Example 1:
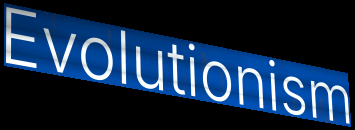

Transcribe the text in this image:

Evolutionism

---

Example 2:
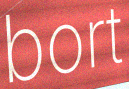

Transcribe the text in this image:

bort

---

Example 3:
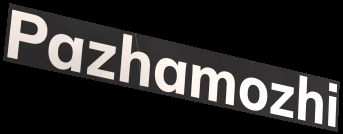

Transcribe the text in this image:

Pazhamozhi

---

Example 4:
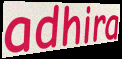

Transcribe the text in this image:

adhira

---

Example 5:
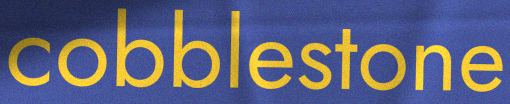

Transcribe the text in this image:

cobblestone